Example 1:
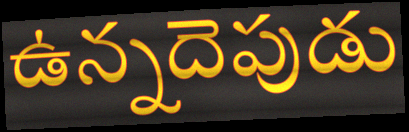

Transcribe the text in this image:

ఉన్నదెపుడు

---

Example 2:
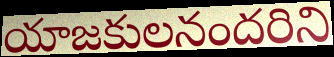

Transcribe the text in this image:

యాజకులనందరిని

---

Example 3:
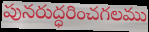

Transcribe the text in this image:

పునరుద్ధరించగలము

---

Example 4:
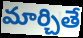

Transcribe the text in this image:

మార్చితే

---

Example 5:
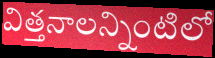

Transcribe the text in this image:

విత్తనాలన్నింటిలో